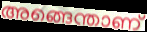
അങ്ങെന്താണ്